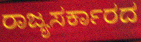
ರಾಜ್ಯಸರ್ಕಾರದ